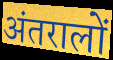
अंतरालों